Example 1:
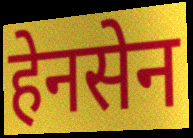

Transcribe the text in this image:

हेनसेन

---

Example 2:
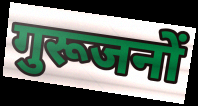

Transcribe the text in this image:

गुरूजनों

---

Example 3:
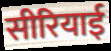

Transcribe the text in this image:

सीरियाई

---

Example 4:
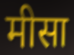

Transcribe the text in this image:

मीसा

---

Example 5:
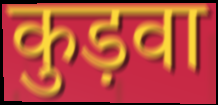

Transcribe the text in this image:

कुड़वा